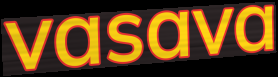
vasava